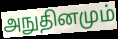
அநுதினமும்